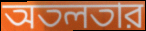
অতলতার